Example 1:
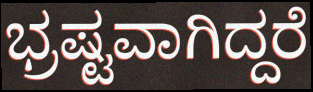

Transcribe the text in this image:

ಭ್ರಷ್ಟವಾಗಿದ್ದರೆ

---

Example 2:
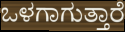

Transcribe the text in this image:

ಒಳಗಾಗುತ್ತಾರೆ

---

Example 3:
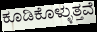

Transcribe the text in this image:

ಕೂಡಿಕೊಳ್ಳುತ್ತವೆ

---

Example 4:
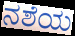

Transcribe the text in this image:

ನಶೆಯ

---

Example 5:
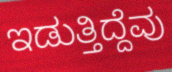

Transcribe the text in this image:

ಇಡುತ್ತಿದ್ದೆವು